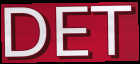
DET